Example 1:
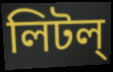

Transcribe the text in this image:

লিটল্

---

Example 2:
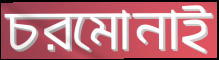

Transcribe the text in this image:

চরমোনাই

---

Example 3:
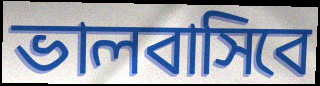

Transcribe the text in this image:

ভালবাসিবে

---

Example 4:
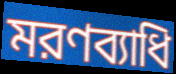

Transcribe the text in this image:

মরণব্যাধি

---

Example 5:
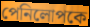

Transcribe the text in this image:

পেনিলোপকে